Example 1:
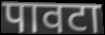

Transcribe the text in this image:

पावटा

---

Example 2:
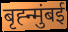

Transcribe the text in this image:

बृह्न्मुंबई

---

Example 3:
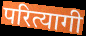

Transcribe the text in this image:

परित्यागी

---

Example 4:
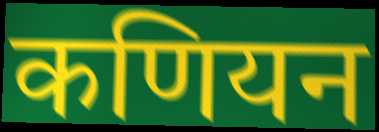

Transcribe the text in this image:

कणियन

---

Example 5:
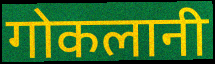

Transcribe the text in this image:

गोकलानी